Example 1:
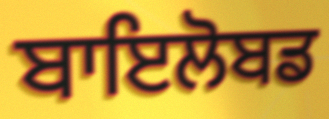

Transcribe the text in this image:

ਬਾਇਲੋਬਡ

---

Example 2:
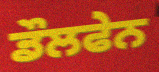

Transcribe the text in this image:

ਡੌਲਫੇਨ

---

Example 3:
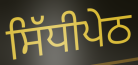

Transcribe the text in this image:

ਸਿੱਧੀਪੇਠ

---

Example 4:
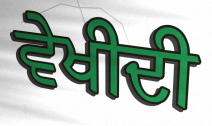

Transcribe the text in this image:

ਵੇਖੀਦੀ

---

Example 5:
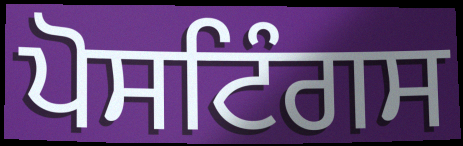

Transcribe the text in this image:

ਪੋਸਟਿੰਗਸ